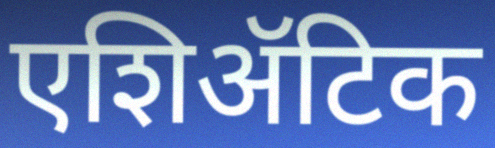
एशिॲटिक